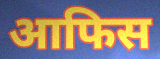
आफिस